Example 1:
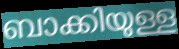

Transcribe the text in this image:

ബാക്കിയുള്ള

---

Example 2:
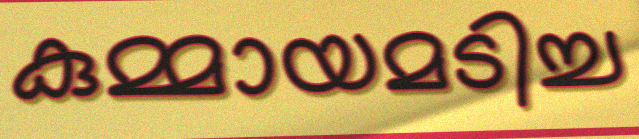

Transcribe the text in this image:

കുമ്മായമടിച്ച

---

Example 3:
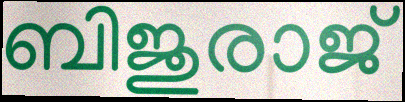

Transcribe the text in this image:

ബിജുരാജ്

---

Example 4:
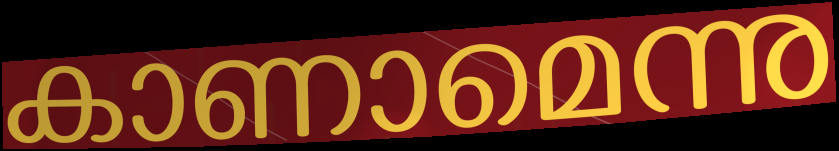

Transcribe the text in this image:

കാണാമെന്നു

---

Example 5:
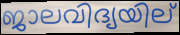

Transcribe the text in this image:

ജാലവിദ്യയില്